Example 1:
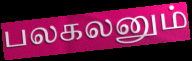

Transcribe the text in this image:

பலகலனும்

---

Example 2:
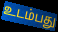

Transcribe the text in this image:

உடம்பது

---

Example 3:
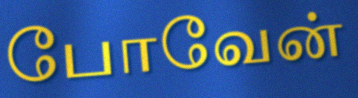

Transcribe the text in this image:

போவேன்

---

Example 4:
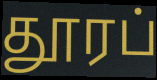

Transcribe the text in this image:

தூரப்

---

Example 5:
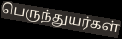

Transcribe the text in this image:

பெருந்துயர்கள்